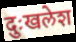
दुःखलेश